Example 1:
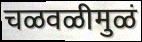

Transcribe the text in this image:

चळवळीमुळं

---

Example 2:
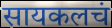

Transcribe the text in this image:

सायकलचं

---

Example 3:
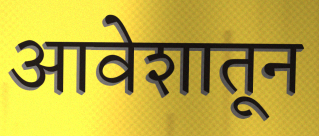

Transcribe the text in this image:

आवेशातून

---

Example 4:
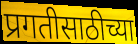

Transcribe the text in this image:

प्रगतीसाठीच्या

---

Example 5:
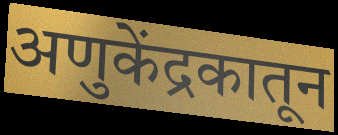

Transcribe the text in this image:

अणुकेंद्रकातून